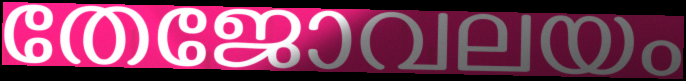
തേജോവലയം